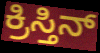
ಕ್ರಿಸ್ತಿನ್